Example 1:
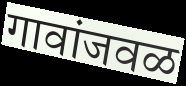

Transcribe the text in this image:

गावांजवळ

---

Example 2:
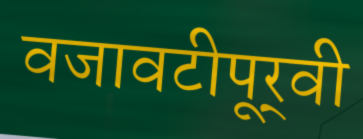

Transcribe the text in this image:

वजावटीपूर्वी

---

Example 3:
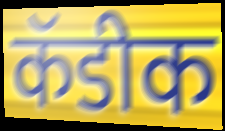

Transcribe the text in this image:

कॅडीक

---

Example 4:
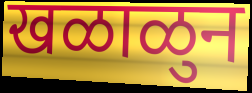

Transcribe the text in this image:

खळाळुन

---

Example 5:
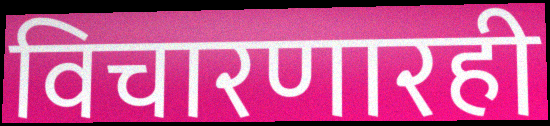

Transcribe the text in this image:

विचारणारही